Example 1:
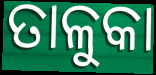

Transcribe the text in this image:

ତାଳୁକା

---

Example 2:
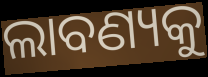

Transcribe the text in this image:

ଲାବଣ୍ୟକୁ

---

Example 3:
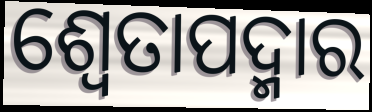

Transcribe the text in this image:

ଶ୍ଵେତାପଦ୍ମାର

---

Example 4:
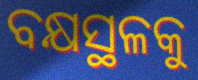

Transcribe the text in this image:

ବକ୍ଷସ୍ଥଳକୁ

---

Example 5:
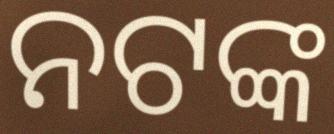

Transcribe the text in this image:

ନଟଙ୍କ